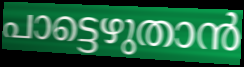
പാട്ടെഴുതാൻ